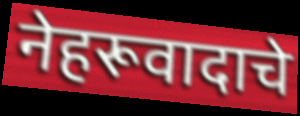
नेहरूवादाचे